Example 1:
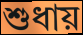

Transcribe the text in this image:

শুধায়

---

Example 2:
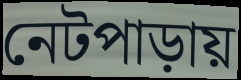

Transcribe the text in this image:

নেটপাড়ায়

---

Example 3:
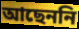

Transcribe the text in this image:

আছেননি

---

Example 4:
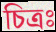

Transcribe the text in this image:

চিত্রঃ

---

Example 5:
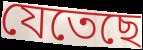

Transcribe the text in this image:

যেতেছে